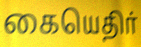
கையெதிர்